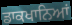
ਡਾਕਖਾਨਿਆਂ